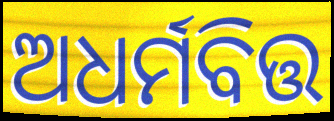
ଅଧର୍ମବିତ୍ତ